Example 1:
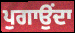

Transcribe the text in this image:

ਪੁਗਾਉਂਦਾ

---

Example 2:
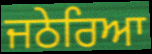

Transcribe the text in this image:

ਜਠੇਰਿਆ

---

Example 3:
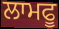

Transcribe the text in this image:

ਲਾਮਫੂ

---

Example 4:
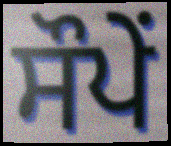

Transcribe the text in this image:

ਸੌਪੇਂ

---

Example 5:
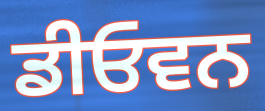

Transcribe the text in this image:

ਡੀਓਵਨ